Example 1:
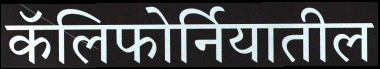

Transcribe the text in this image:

कॅलिफोर्नियातील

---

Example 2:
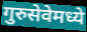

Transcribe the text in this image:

गुरुसेवेमध्ये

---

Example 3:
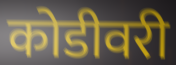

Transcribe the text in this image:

कोडीवरी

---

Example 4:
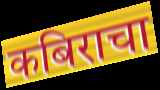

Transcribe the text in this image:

कबिराचा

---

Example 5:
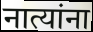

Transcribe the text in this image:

नात्यांना